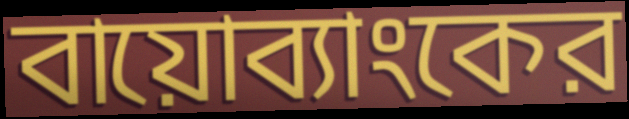
বায়োব্যাংকের